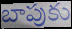
బాపుకు